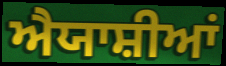
ਐਯਾਸ਼ੀਆਂ